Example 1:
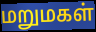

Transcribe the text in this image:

மறுமகள்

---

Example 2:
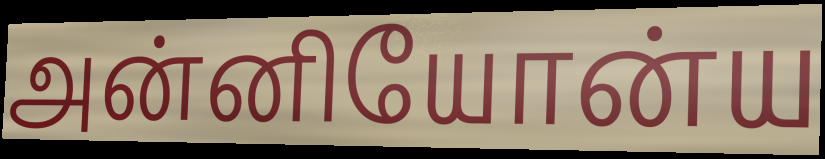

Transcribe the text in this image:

அன்னியோன்ய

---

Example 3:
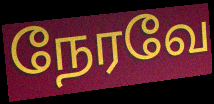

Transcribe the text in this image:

நேரவே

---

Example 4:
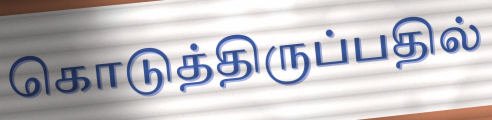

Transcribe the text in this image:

கொடுத்திருப்பதில்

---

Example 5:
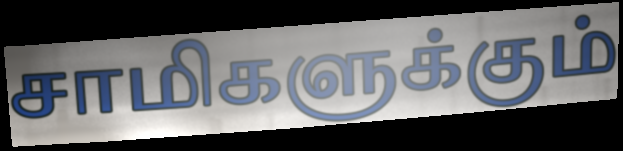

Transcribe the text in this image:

சாமிகளுக்கும்